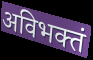
अविभक्तं